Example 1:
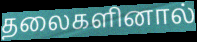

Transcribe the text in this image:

தலைகளினால்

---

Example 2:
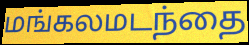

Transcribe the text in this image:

மங்கலமடந்தை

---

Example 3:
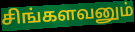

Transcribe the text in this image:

சிங்களவனும்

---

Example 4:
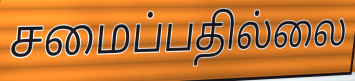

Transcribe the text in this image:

சமைப்பதில்லை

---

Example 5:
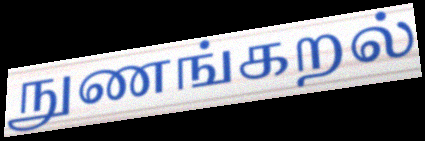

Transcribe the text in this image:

நுணங்கறல்